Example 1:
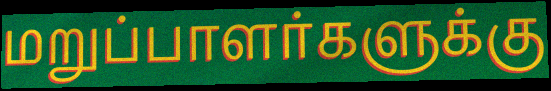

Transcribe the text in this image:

மறுப்பாளர்களுக்கு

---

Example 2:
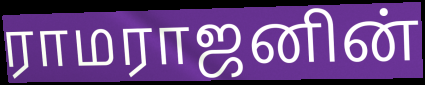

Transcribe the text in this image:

ராமராஜனின்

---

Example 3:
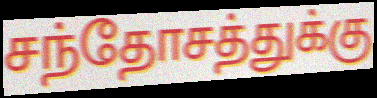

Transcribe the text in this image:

சந்தோசத்துக்கு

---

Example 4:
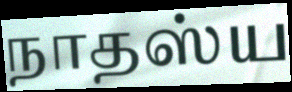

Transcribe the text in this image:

நாதஸ்ய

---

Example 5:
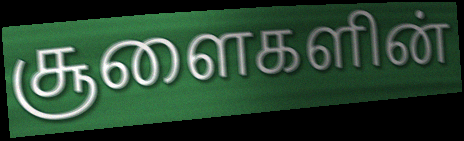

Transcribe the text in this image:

சூளைகளின்